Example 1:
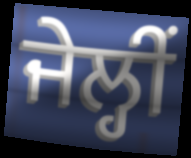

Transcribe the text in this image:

ਜੇਲ੍ਹੀਂ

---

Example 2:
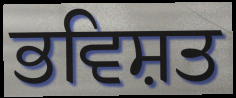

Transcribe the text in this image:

ਭਵਿਸ਼ਤ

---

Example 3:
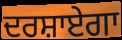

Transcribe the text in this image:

ਦਰਸ਼ਾਏਗਾ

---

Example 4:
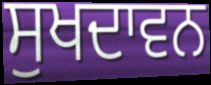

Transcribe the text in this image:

ਸੁਖਦਾਵਨ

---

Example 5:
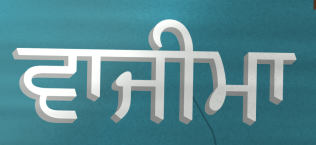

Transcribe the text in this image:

ਵਾਜੀਮਾ